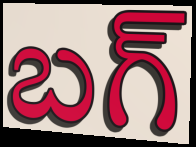
బగ్